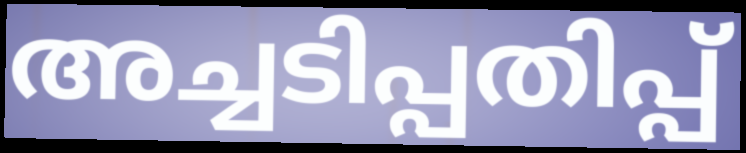
അച്ചടിപ്പതിപ്പ്